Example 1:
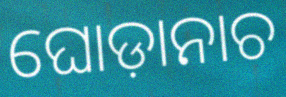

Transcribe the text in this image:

ଘୋଡ଼ାନାଚ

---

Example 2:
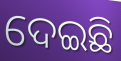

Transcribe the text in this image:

ଦେଇଛି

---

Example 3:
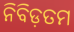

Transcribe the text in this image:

ନିବିଡ଼ତମ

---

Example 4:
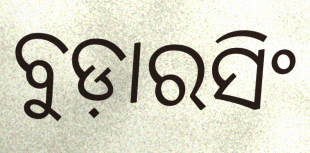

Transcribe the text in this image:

ବୁଡ଼ାରସିଂ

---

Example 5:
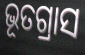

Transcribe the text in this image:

ଭୂତଗ୍ରାସ